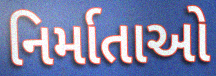
નિર્માતાઓ